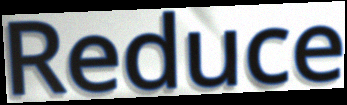
Reduce